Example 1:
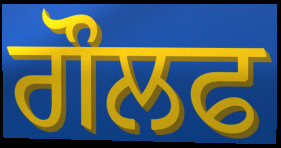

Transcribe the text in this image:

ਗੌਲਫ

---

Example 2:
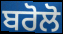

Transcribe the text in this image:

ਬਰੋਲੋ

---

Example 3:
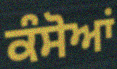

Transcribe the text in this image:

ਕੰਸੋਆਂ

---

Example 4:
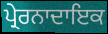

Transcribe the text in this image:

ਪ੍ਰੇਰਨਾਦਾਇਕ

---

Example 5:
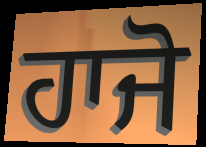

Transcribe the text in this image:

ਹਾਜੋ